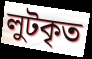
লুটকৃত